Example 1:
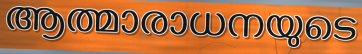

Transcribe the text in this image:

ആത്മാരാധനയുടെ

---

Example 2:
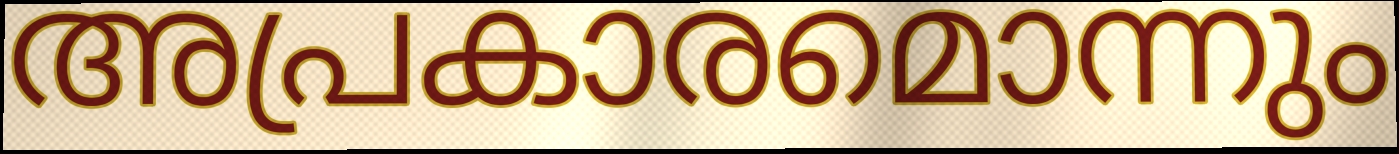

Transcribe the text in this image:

അപ്രകാരമൊന്നും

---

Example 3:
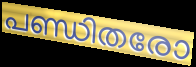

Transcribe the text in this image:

പണ്ഡിതരോ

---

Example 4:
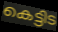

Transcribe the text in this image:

കെട്ടിട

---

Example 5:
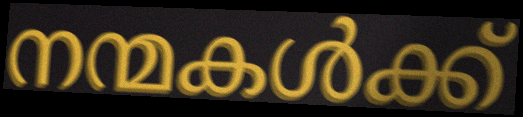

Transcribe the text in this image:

നന്മകൾക്ക്